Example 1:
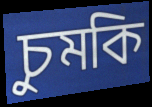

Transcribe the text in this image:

চুমকি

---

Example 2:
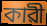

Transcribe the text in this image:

কাৱী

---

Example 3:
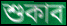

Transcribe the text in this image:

শুকাব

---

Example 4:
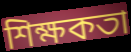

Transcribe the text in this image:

শিক্ষকতা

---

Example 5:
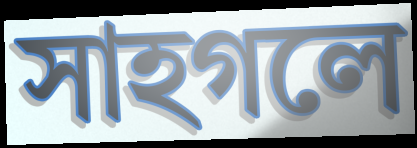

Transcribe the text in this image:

সাহগলে